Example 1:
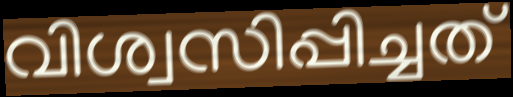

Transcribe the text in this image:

വിശ്വസിപ്പിച്ചത്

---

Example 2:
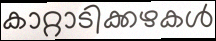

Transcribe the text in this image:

കാറ്റാടിക്കഴകൾ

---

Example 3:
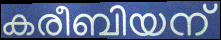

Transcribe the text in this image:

കരീബിയന്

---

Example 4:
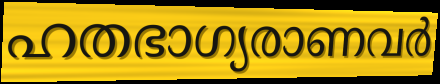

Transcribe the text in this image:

ഹതഭാഗ്യരാണവർ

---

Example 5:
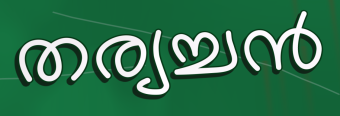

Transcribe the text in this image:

തര്യച്ചൻ